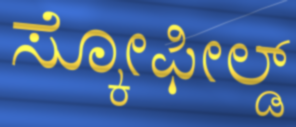
ಸ್ಕೋಫೀಲ್ಡ್